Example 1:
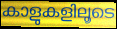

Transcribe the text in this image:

കാളുകളിലൂടെ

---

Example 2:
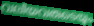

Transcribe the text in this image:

വലിയവരുടെയും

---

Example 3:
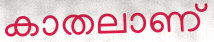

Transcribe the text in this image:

കാതലാണ്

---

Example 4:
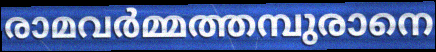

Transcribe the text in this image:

രാമവർമ്മത്തമ്പുരാനെ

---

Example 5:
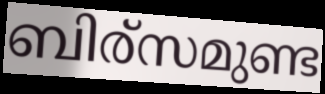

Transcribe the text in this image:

ബിര്സമുണ്ട